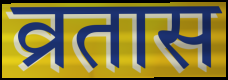
व्रतास